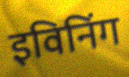
इविनिंग